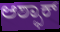
ಆಶ್ಫಾಕ್